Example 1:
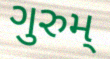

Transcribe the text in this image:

ગુરુમ્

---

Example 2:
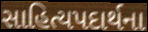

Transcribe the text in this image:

સાહિત્યપદાર્થના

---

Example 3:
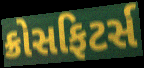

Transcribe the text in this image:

ક્રોસફિટર્સ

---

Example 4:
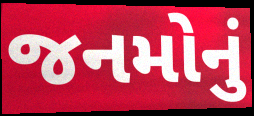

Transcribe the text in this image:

જનમોનું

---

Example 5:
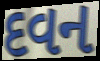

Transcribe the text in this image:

દવન